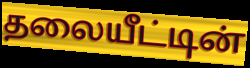
தலையீட்டின்